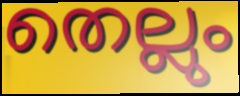
തെല്ലും